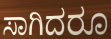
ಸಾಗಿದರೂ